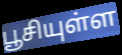
பூசியுள்ள